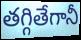
తగ్గితేగానీ